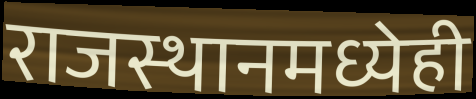
राजस्थानमध्येही